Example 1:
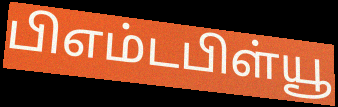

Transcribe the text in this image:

பிஎம்டபிள்யூ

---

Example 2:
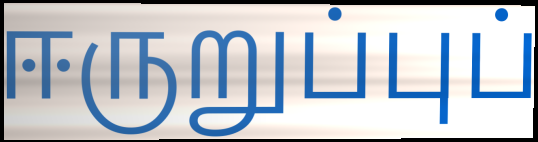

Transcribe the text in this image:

ஈருறுப்புப்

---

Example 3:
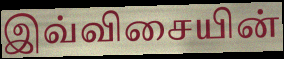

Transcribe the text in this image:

இவ்விசையின்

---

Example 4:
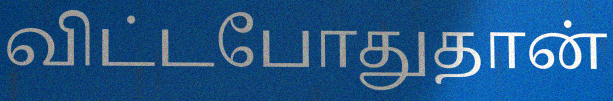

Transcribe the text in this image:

விட்டபோதுதான்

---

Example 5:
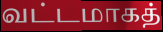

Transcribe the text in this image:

வட்டமாகத்